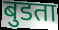
बुडता